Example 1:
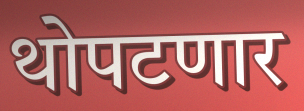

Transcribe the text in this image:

थोपटणार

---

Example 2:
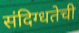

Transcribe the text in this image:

संदिग्धतेची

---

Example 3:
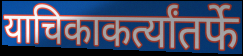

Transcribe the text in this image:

याचिकाकर्त्यांतर्फे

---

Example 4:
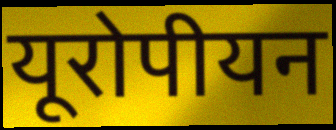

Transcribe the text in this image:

यूरोपीयन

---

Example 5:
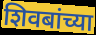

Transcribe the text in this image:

शिवबांच्या